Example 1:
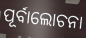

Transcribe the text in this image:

ପୂର୍ବାଲୋଚନା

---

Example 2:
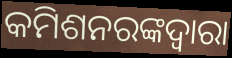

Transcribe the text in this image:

କମିଶନରଙ୍କଦ୍ୱାରା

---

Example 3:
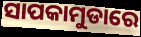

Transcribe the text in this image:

ସାପକାମୁଡାରେ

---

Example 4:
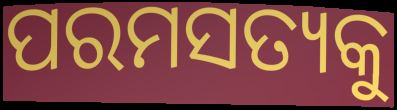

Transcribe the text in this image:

ପରମସତ୍ୟକୁ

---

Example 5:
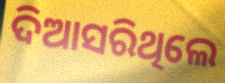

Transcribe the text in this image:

ଦିଆସରିଥିଲେ